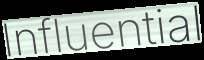
Influential